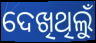
ଦେଖିଥିଲୁଁ